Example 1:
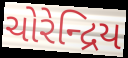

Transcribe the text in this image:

ચોરેન્દ્રિય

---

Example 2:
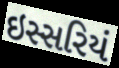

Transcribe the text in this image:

ઇસ્સરિયં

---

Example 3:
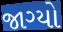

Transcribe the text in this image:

જાગ્યો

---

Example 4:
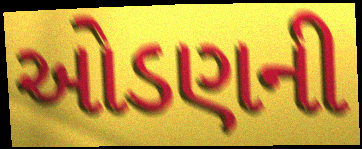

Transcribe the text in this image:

ઓડણની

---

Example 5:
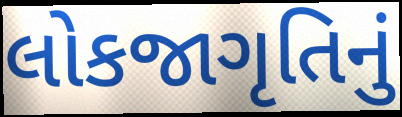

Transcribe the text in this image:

લોકજાગૃતિનું